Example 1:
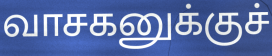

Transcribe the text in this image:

வாசகனுக்குச்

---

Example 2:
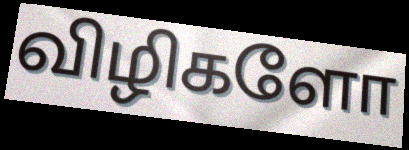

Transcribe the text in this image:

விழிகளோ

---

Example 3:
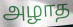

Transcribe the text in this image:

அழாத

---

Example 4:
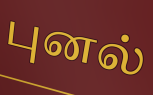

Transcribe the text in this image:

புனல்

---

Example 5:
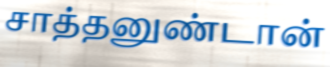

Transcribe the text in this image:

சாத்தனுண்டான்